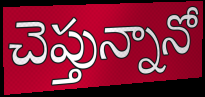
చెప్తున్నానో